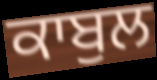
ਕਾਬੁਲ